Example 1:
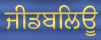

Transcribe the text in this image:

ਜੀਡਬਲਿਊ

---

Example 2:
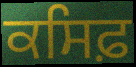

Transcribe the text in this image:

ਕਸਿਫ਼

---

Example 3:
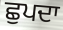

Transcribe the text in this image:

ਛੁਪਦਾ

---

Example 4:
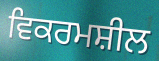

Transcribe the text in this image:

ਵਿਕਰਮਸ਼ੀਲ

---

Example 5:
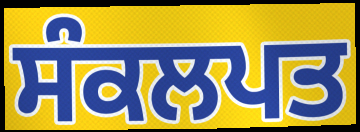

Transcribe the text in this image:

ਸੰਕਲਪਤ